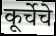
कूर्चेचे